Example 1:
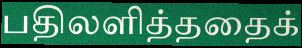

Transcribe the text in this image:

பதிலளித்ததைக்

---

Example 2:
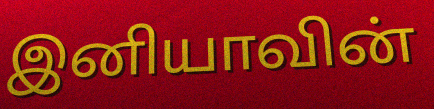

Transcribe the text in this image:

இனியாவின்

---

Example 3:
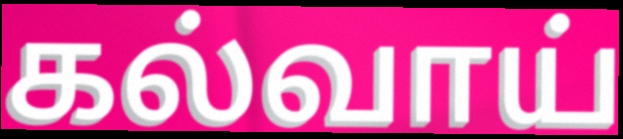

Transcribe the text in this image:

கல்வாய்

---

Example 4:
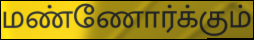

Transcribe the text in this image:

மண்ணோர்க்கும்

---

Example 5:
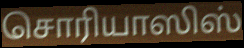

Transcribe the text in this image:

சொரியாஸிஸ்